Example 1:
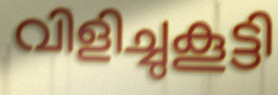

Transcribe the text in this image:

വിളിച്ചുകൂട്ടി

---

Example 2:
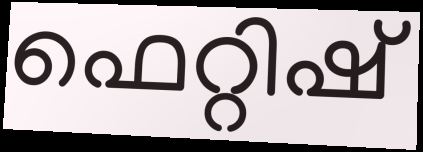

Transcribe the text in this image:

ഫെറ്റിഷ്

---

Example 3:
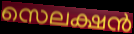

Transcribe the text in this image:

സെലക്ഷൻ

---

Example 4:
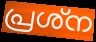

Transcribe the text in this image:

പ്രശ്‌ന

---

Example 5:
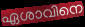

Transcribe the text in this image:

ഏശാവിനെ